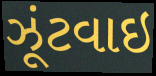
ઝૂંટવાઇ